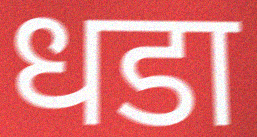
धडा